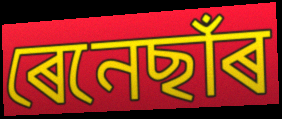
ৰেনেছাঁৰ